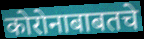
कोरोनाबाबतचे